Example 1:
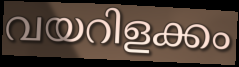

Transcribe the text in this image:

വയറിളക്കം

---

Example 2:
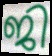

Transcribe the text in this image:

ജി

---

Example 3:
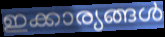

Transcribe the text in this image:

ഇക്കാര്യങ്ങൾ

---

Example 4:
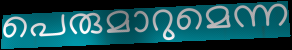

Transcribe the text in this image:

പെരുമാറുമെന്ന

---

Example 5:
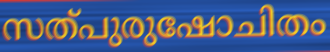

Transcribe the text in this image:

സത്പുരുഷോചിതം